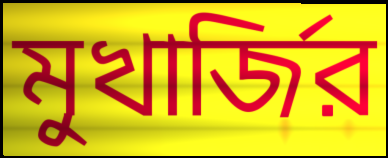
মুখার্জির